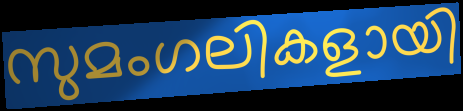
സുമംഗലികളായി